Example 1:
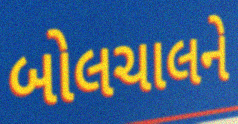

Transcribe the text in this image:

બોલચાલને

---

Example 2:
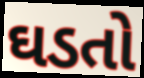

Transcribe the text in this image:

ઘડતો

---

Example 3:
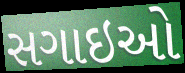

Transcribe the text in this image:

સગાઇઓ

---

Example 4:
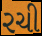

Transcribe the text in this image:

રચી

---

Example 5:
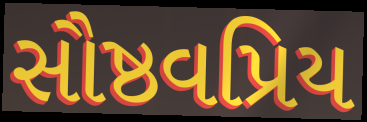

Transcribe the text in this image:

સૌષ્ઠવપ્રિય